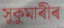
সুকুমাৰীৰ